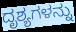
ದೃಶ್ಯಗಳನ್ನು